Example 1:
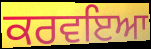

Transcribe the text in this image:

ਕਰਵਇਆ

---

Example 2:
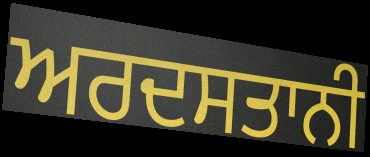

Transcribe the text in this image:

ਅਰਦਸਤਾਨੀ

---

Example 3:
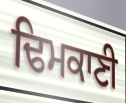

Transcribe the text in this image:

ਢਿਮਕਾਣੀ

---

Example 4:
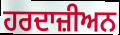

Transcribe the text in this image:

ਹਰਦਾਜ਼ੀਅਨ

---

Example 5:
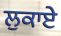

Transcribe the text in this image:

ਲੁਕਾਏ